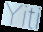
Yiti